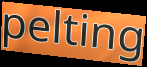
pelting